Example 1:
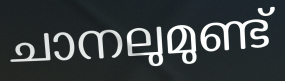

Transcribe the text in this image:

ചാനലുമുണ്ട്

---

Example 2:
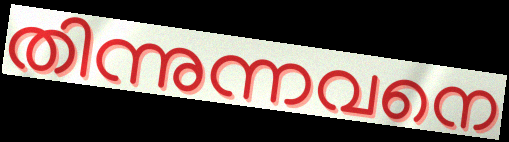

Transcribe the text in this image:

തിന്നുന്നവനെ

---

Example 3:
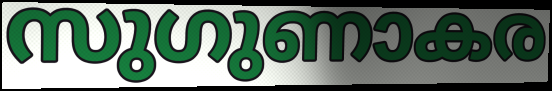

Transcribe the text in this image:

സുഗുണാകര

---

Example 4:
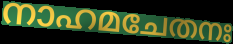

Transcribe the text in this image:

നാഹമചേതനഃ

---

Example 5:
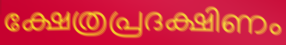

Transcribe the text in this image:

ക്ഷേത്രപ്രദക്ഷിണം